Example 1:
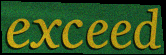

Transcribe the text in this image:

exceed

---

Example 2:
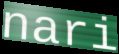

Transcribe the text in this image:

nari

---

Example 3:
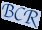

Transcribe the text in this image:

BCR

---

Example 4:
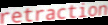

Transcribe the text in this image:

retraction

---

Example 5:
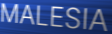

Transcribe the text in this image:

MALESIA